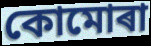
কোমোৰা